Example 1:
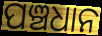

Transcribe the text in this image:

ପଞ୍ଚଧାନ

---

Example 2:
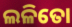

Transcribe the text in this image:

ଲଳିତୋ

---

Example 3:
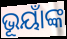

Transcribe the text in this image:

ଭୂୟାଁଙ୍କ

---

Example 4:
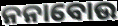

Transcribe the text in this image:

ନନାବୋଉ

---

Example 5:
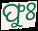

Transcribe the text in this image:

ଫୁଃ